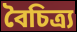
বৈচিত্ৰ্য